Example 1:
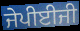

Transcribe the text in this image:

ਜੇਪੀਈਜੀ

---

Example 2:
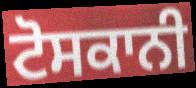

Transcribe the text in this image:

ਟੋਸਕਾਨੀ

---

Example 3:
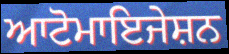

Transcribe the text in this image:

ਆਟੋਮਾਇਜੇਸ਼ਨ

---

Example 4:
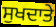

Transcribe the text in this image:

ਸੁਖਦਾਤੇ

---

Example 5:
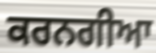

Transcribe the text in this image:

ਕਰਨਗੀਆ